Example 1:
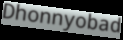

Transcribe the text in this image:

Dhonnyobad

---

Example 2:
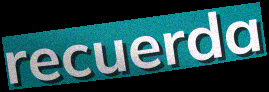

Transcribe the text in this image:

recuerda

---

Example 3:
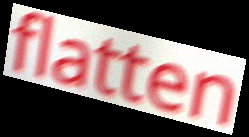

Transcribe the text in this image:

flatten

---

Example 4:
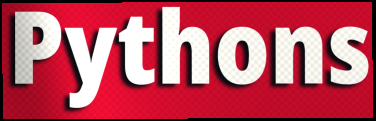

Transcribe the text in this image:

Pythons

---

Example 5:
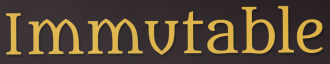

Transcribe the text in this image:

Immutable